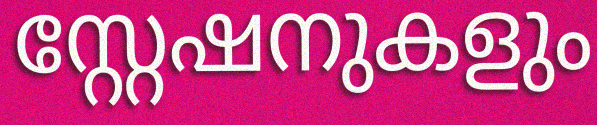
സ്റ്റേഷനുകളും